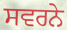
ਸਵਰਨੇ